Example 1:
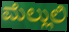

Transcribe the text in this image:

ಮೆಲ್ಲುಲಿ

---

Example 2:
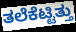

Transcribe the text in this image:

ತಲೆಕೆಟ್ಟಿತ್ತು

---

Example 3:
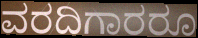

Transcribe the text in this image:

ವರದಿಗಾರರೂ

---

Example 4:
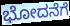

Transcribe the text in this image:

ಭೋದನೆಗೆ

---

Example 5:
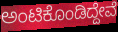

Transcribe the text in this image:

ಅಂಟಿಕೊಂಡಿದ್ದೇವೆ